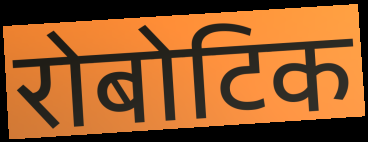
रोबोटिक